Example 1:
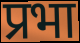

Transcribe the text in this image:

प्रभा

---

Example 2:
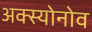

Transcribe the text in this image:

अक्स्योनोव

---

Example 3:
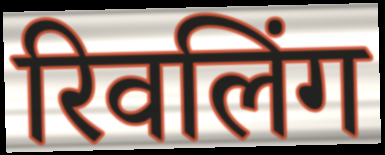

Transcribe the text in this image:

रिवलिंग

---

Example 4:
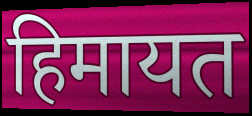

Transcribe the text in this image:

हिमायत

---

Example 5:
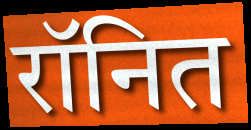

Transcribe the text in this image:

रॉनित